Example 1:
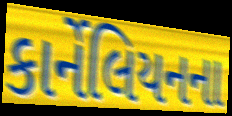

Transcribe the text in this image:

કાર્નેલિયનના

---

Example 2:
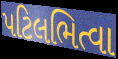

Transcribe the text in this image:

પટિલભિત્વા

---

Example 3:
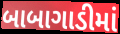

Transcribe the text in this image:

બાબાગાડીમાં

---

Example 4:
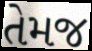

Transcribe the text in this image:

તેમજ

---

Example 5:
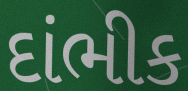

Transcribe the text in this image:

દાંભીક